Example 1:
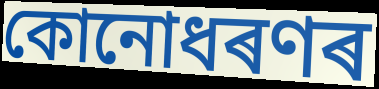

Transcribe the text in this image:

কোনোধৰণৰ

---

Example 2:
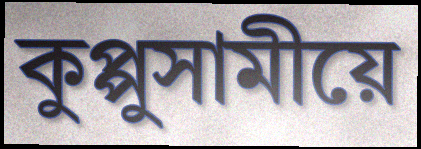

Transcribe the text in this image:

কুপ্পুসামীয়ে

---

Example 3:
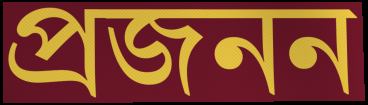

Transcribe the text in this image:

প্ৰজনন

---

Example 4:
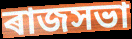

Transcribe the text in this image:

ৰাজসভা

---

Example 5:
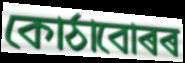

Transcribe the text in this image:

কোঠাবোৰৰ